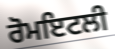
ਰੋਮਇਟਲੀ